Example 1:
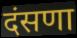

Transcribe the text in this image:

दंसणा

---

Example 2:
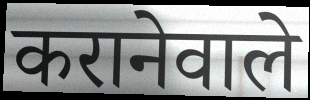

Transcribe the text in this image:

करानेवाले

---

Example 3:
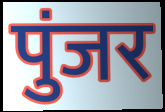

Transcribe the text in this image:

पुंजर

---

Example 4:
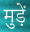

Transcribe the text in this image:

मुड़ें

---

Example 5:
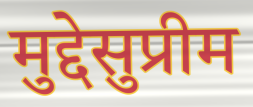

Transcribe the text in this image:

मुद्देसुप्रीम